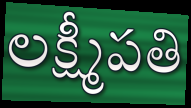
లక్ష్మీపతి